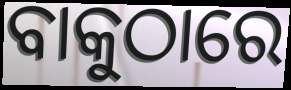
ବାକୁଠାରେ